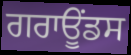
ਗਰਾਊਂਡਸ